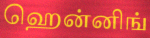
ஹென்னிங்